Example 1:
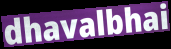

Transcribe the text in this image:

dhavalbhai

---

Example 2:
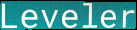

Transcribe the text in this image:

Leveler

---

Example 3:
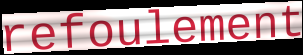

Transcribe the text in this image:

refoulement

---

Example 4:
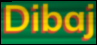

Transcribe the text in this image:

Dibaj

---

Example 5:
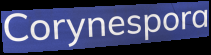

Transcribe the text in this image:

Corynespora